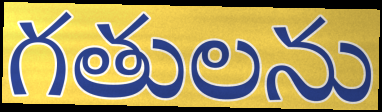
గతులను